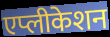
एप्‍लीकेशन